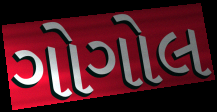
ગોગોલ